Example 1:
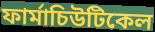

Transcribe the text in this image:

ফাৰ্মাচিউটিকেল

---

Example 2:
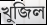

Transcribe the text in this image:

খুজিল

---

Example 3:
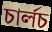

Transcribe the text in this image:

চাৰ্লচ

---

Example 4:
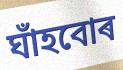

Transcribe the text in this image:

ঘাঁহবোৰ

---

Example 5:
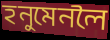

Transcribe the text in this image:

হনুমেনলৈ